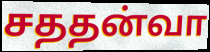
சததன்வா